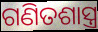
ଗଣିତଶାସ୍ତ୍ର